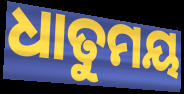
ଧାତୁମୟ